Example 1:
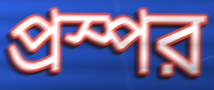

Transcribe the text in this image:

প্রস্পর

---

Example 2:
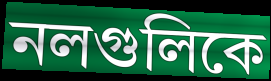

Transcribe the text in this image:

নলগুলিকে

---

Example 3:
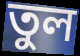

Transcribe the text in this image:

তুল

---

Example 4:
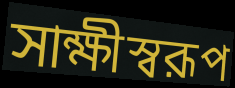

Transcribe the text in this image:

সাক্ষীস্বরূপ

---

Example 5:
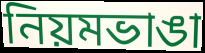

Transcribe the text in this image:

নিয়মভাঙা